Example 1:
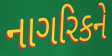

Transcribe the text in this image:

નાગરિકને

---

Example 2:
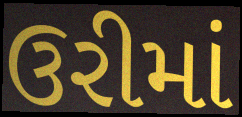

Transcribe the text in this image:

ઉરીમાં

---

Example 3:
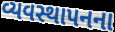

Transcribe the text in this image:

વ્યવસ્થાપનના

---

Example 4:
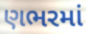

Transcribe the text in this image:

ણભરમાં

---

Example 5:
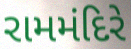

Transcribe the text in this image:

રામમંદિરે